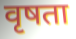
वृषता